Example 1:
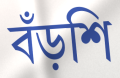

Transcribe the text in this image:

বঁড়শি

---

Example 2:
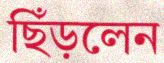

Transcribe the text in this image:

ছিঁড়লেন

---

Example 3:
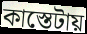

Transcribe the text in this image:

কাস্তেটায়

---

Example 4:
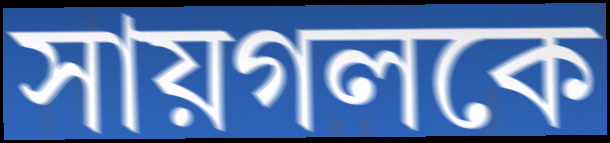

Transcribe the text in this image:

সায়গলকে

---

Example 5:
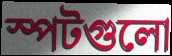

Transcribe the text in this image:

স্পটগুলো